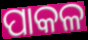
ପାକଳ